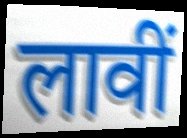
लावीं